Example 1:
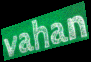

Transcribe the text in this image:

vahan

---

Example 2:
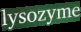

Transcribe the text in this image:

lysozyme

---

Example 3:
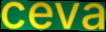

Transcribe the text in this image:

ceva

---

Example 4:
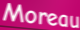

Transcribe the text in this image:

Moreau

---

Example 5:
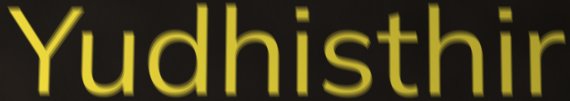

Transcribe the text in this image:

Yudhisthir